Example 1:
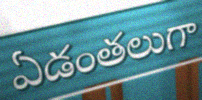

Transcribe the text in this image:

ఏడంతలుగా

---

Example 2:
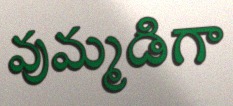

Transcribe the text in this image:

వుమ్మడిగా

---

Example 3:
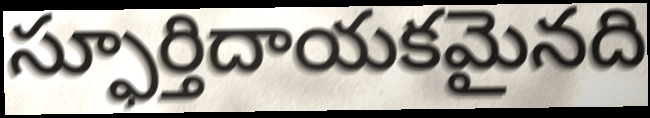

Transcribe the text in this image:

స్ఫూర్తిదాయకమైనది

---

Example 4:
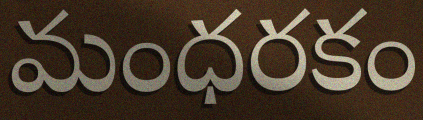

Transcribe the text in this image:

మంధరకం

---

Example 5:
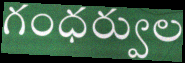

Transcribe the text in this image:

గంధర్వుల